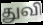
துவி